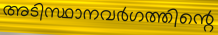
അടിസ്ഥാനവർഗത്തിന്റെ